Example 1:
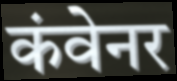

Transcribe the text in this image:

कंवेनर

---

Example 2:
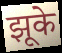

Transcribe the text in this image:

झूके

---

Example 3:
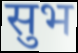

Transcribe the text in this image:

सुभ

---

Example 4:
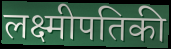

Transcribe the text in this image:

लक्ष्मीपतिकी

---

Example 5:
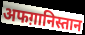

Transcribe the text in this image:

अफग़ानिस्तान